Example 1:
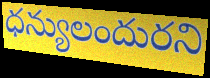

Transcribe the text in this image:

ధన్యులందురని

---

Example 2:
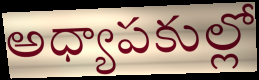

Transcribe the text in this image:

అధ్యాపకుల్లో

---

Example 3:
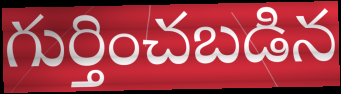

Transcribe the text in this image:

గుర్తించబడిన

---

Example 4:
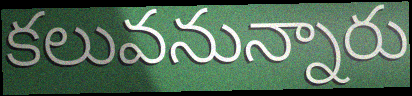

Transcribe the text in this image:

కలువనున్నారు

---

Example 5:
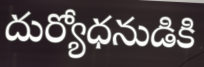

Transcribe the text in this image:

దుర్యోధనుడికి